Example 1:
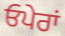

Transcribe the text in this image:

ਓਪੇਰਾਂ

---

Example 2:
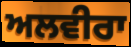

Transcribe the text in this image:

ਅਲਵੀਰਾ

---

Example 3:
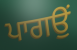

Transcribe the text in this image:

ਪਾਗਉਂ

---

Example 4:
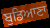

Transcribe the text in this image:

ਬੁਡਿਆਣਾ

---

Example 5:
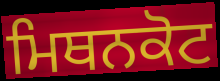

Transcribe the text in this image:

ਮਿਥਨਕੋਟ